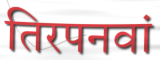
तिरपनवां